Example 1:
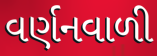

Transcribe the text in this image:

વર્ણનવાળી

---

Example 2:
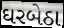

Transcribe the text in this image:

ઘરબેઠા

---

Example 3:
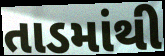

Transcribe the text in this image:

તાડમાંથી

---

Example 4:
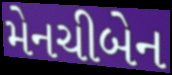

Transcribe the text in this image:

મેનચીબેન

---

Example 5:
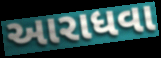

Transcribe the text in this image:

આરાધવા